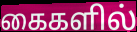
கைகளில்